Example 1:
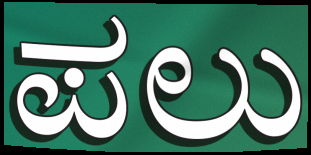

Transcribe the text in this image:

ಪಲು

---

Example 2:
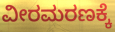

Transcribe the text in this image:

ವೀರಮರಣಕ್ಕೆ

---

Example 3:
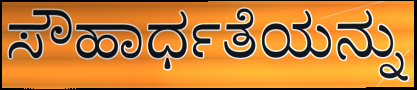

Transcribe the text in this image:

ಸೌಹಾರ್ಧತೆಯನ್ನು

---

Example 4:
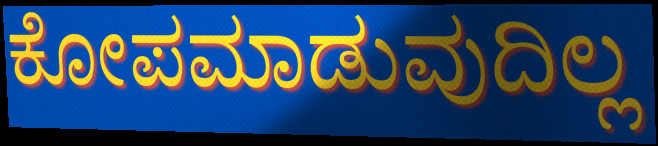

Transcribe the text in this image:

ಕೋಪಮಾಡುವುದಿಲ್ಲ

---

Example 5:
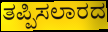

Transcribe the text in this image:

ತಪ್ಪಿಸಲಾರದ